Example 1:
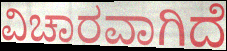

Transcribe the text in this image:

ವಿಚಾರವಾಗಿದೆ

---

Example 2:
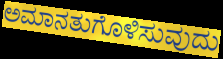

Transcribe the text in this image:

ಅಮಾನತುಗೊಳಿಸುವುದು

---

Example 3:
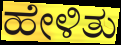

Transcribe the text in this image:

ಹೇಳಿತು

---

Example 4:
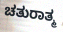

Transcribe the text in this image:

ಚತುರಾತ್ಮ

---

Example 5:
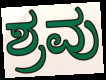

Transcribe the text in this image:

ಶ್ರವು